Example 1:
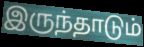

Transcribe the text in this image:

இருந்தாடும்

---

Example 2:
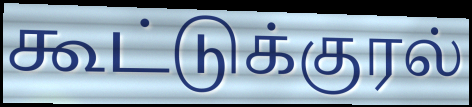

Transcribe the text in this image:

கூட்டுக்குரல்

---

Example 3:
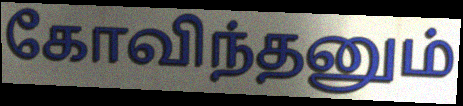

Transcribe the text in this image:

கோவிந்தனும்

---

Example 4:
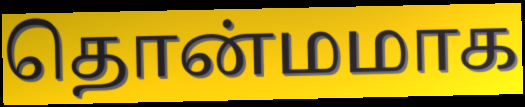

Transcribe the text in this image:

தொன்மமாக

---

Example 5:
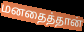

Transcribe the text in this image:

மனதைத்தான்